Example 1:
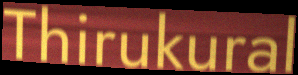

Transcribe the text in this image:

Thirukural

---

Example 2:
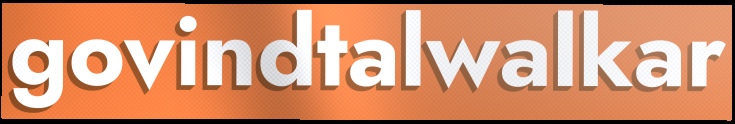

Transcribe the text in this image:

govindtalwalkar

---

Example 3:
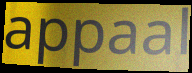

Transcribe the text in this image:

appaal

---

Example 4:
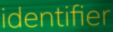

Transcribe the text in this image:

identifier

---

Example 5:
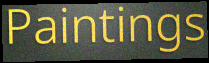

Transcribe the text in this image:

Paintings